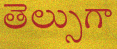
తెల్సుగా